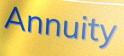
Annuity